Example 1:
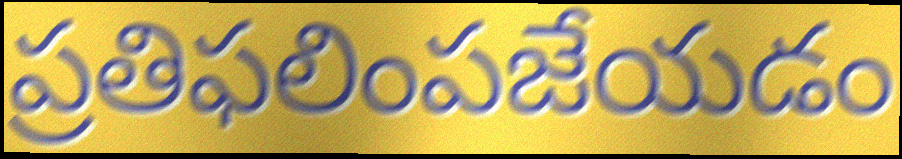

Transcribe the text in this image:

ప్రతిఫలింపజేయడం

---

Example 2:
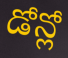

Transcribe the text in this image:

డోన్లో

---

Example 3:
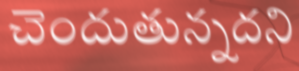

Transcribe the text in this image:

చెందుతున్నదని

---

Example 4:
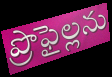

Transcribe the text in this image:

ప్రొఫైల్లను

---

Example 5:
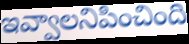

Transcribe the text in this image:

ఇవ్వాలనిపించింది